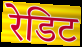
रेडिट